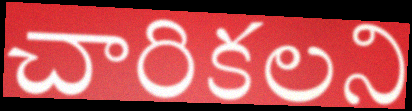
చారికలని